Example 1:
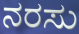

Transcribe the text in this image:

ನರಸು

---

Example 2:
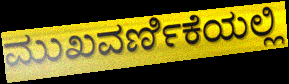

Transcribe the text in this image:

ಮುಖವರ್ಣಿಕೆಯಲ್ಲಿ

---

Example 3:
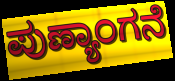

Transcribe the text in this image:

ಪುಣ್ಯಾಂಗನೆ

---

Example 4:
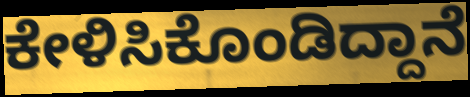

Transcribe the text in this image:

ಕೇಳಿಸಿಕೊಂಡಿದ್ದಾನೆ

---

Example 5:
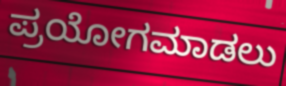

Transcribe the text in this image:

ಪ್ರಯೋಗಮಾಡಲು